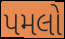
પમલો